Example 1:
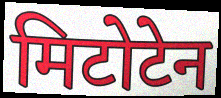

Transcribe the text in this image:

मिटोटेन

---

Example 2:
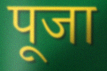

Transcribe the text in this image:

पूजा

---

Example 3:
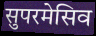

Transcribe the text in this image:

सुपरमेसिव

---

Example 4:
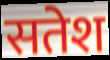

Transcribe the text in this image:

सतेश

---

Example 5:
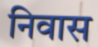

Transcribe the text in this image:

निवास